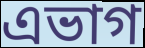
এভাগ